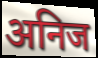
अनिज